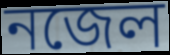
নজেল